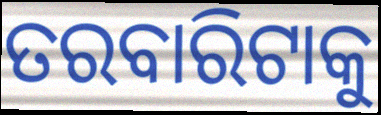
ତରବାରିଟାକୁ